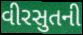
વીરસુતની